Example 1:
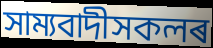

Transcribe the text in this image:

সাম্যবাদীসকলৰ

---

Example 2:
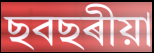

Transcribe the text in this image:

ছবছৰীয়া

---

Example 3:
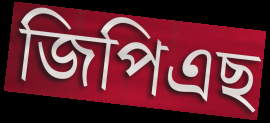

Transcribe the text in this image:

জিপিএছ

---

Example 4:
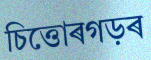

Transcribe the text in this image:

চিত্তোৰগড়ৰ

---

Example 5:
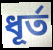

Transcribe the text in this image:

ধূৰ্ত